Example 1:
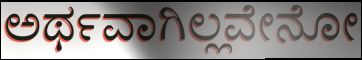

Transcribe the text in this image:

ಅರ್ಥವಾಗಿಲ್ಲವೇನೋ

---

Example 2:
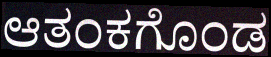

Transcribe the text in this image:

ಆತಂಕಗೊಂಡ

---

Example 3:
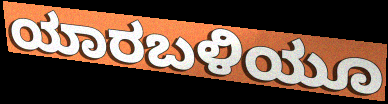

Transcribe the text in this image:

ಯಾರಬಳಿಯೂ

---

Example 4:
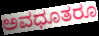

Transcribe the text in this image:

ಅವಧೂತರೂ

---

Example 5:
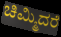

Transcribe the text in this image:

ಚಿಮ್ಮಿದರೆ